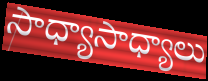
సాధ్యాసాధ్యాలు